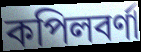
কপিলবর্ণা